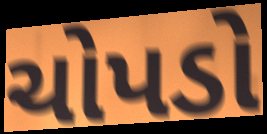
ચોપડો